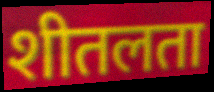
शीतलता